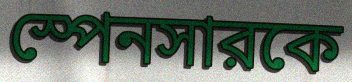
স্পেনসারকে